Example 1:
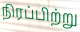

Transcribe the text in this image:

நிரப்பிற்று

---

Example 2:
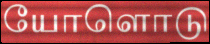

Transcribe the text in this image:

யோளொடு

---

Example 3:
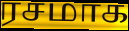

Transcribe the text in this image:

ரசமாக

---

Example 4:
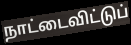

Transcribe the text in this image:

நாட்டைவிட்டுப்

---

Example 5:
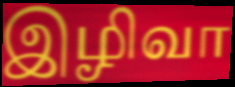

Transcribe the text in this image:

இழிவா